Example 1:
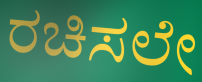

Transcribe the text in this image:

ರಚಿಸಲೇ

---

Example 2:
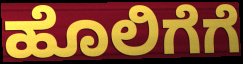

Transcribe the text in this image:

ಹೊಲಿಗೆಗೆ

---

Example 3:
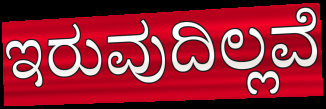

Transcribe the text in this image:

ಇರುವುದಿಲ್ಲವೆ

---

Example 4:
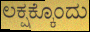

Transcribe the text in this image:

ಲಕ್ಷಕ್ಕೊಂದು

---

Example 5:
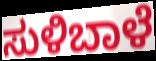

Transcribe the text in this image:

ಸುಳಿಬಾಳೆ